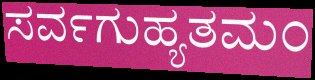
ಸರ್ವಗುಹ್ಯತಮಂ